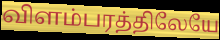
விளம்பரத்திலேயே